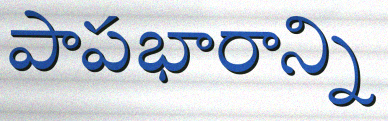
పాపభారాన్ని